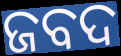
ଜବଦ